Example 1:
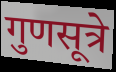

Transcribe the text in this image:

गुणसूत्रे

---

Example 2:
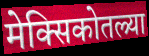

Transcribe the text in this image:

मेक्सिकोतल्या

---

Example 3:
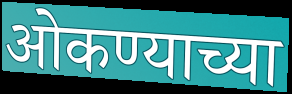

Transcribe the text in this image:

ओकण्याच्या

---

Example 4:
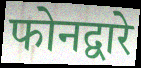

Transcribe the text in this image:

फोनद्वारे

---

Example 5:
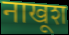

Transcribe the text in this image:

नाखूश